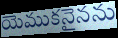
యెముకనైనను